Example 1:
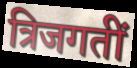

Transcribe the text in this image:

त्रिजगतीं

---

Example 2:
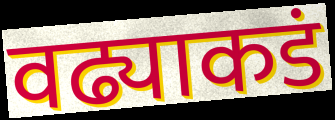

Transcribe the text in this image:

वढ्याकडं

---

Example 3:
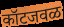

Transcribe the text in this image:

कॉटजवळ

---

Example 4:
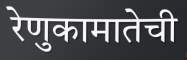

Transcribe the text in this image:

रेणुकामातेची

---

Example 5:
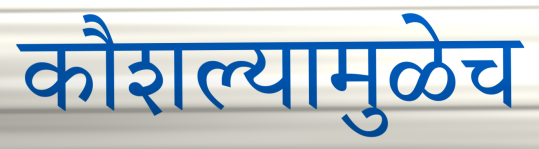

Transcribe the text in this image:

कौशल्यामुळेच